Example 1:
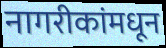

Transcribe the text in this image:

नागरीकांमधून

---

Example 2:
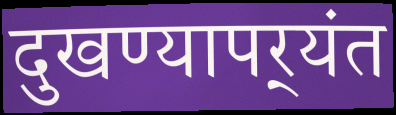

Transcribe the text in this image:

दुखण्यापर्यंत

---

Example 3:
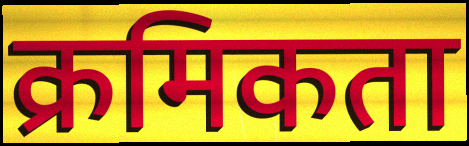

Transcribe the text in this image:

क्रमिकता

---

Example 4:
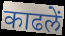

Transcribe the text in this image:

काढलें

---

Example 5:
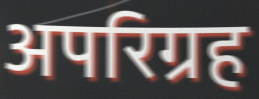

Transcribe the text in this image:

अपरिग्रह